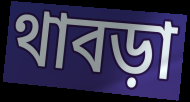
থাবড়া